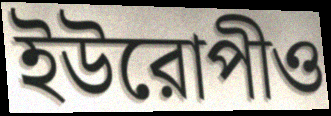
ইউরোপীও